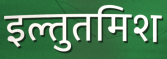
इल्तुतमिश